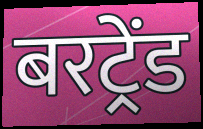
बरट्रेंड